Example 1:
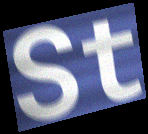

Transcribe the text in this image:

St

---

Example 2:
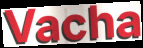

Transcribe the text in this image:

Vacha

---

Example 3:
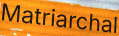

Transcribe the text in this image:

Matriarchal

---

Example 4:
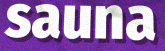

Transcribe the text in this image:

sauna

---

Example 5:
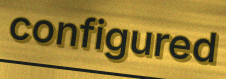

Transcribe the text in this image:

configured